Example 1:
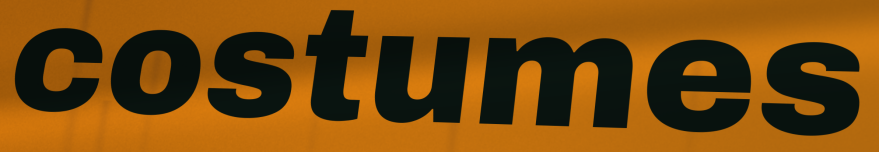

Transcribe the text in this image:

costumes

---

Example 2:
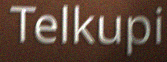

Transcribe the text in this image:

Telkupi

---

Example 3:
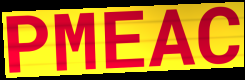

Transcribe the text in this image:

PMEAC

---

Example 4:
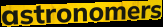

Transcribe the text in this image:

astronomers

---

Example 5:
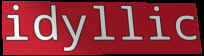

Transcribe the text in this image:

idyllic